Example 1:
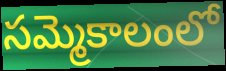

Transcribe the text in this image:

సమ్మెకాలంలో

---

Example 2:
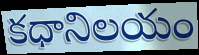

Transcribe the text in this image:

కధానిలయం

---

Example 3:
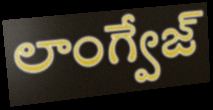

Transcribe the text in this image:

లాంగ్వేజ్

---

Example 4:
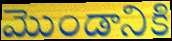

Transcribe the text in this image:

మొండానికి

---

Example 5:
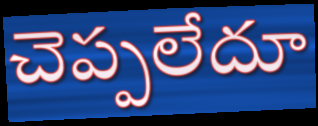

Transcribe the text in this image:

చెప్పలేదూ